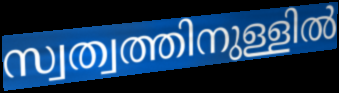
സ്വത്വത്തിനുള്ളിൽ